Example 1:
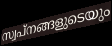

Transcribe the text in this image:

സ്വപ്നങ്ങളുടെയും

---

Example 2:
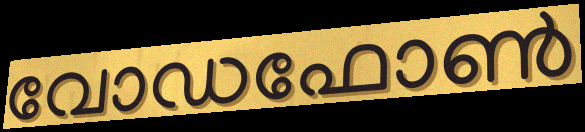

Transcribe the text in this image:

വോഡഫോൺ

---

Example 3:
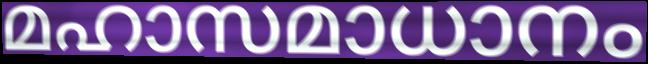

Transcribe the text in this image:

മഹാസമാധാനം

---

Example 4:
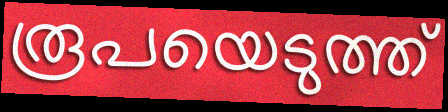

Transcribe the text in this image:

രൂപയെടുത്ത്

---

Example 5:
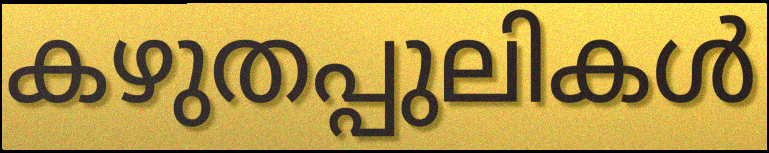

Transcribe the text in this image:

കഴുതപ്പുലികൾ